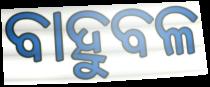
ବାହୁବଳ